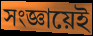
সংজ্ঞায়েই